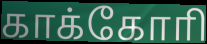
காக்கோரி